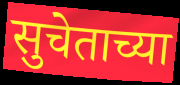
सुचेताच्या